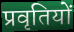
प्रवृतियों